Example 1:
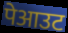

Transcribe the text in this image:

पेआउट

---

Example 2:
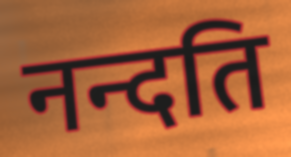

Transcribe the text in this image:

नन्दति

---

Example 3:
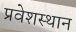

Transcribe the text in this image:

प्रवेशस्थान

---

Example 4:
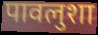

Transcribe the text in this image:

पावलुशा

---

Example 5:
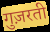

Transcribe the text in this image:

गुज़रती